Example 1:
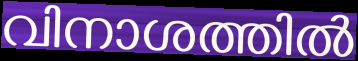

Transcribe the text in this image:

വിനാശത്തിൽ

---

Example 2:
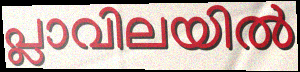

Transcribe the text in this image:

പ്ലാവിലയിൽ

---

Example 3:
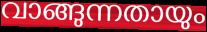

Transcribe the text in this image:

വാങ്ങുന്നതായും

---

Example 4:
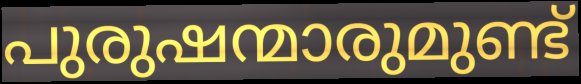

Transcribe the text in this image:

പുരുഷന്മാരുമുണ്ട്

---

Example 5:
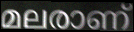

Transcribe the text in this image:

മലരാണ്